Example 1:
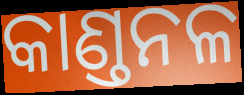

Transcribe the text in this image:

କାଣ୍ଡନଳ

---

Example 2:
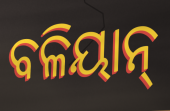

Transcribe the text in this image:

ବଳିୟାନ୍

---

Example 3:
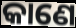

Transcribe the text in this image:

କାଣେ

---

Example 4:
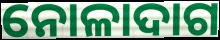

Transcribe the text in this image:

ନୋଳାଦାଗ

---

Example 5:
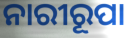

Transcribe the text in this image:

ନାରୀରୂପା